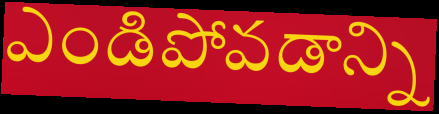
ఎండిపోవడాన్ని